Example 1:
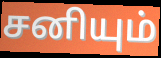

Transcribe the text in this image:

சனியும்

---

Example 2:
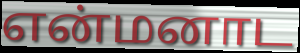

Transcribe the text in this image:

என்மனாட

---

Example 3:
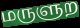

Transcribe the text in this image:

மருளுற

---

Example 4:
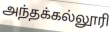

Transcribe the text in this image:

அந்தக்கல்லூரி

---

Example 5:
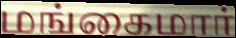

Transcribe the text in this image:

மங்கைமார்